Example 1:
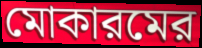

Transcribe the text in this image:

মোকারমের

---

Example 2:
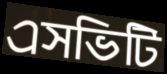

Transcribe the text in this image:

এসভিটি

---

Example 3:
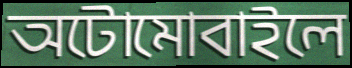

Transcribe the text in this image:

অটোমোবাইলে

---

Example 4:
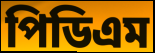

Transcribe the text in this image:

পিডিএম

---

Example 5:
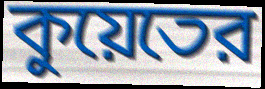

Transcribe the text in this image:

কুয়েতের